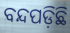
ବନ୍ଦପଡ଼ିଛି